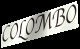
COLOMBO